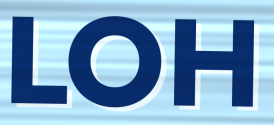
LOH